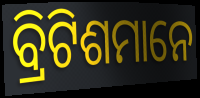
ବ୍ରିଟିଶମାନେ